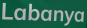
Labanya